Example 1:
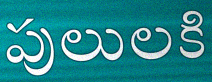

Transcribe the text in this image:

పులులకి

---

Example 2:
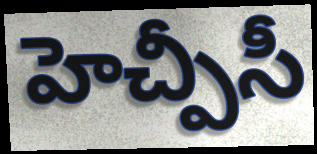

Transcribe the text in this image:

హెచ్పీసీ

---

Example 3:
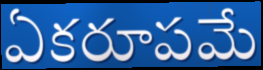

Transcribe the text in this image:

ఏకరూపమే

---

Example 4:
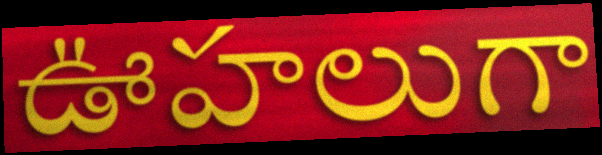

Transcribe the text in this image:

ఊహలుగా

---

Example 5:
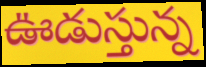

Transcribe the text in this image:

ఊడుస్తున్న